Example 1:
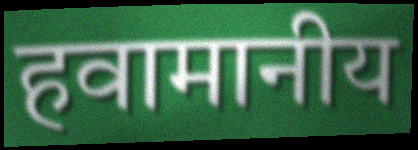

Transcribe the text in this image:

हवामानीय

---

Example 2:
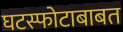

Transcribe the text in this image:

घटस्फोटाबाबत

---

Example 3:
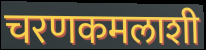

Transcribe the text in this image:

चरणकमलाशी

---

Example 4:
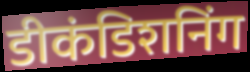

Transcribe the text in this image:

डीकंडिशनिंग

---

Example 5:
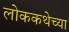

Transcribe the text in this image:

लोककथेच्या